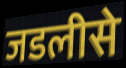
जडलीसे